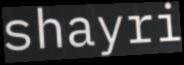
shayri